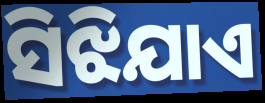
ସିଝିଯାଏ